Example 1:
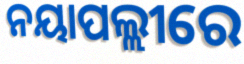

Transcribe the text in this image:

ନୟାପଲ୍ଲୀରେ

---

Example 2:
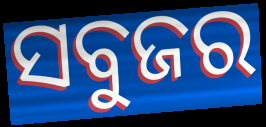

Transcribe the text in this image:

ସବୁଜର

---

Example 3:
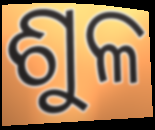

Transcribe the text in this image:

ଶୁଳ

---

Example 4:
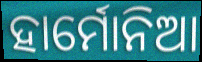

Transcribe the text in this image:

ହାର୍ମୋନିଆ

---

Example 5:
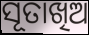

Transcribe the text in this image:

ସୂତାଖିଅ